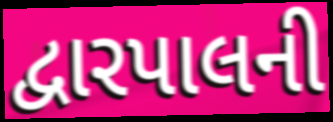
દ્વારપાલની